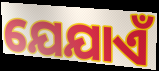
ଯେଯାଏଁ